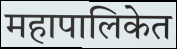
महापालिकेत